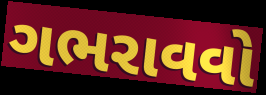
ગભરાવવો